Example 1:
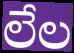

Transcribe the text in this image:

లేల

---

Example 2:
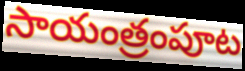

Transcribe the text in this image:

సాయంత్రంపూట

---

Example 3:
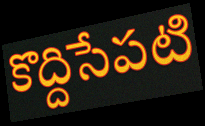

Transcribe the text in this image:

కొద్దిసేపటి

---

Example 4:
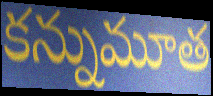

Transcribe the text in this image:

కన్నుమూత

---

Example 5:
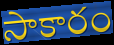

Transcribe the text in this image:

సాకారం